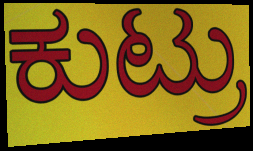
ಕುಟ್ರು